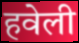
हवेली